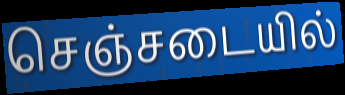
செஞ்சடையில்